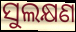
ସୁଲକ୍ଷଣ